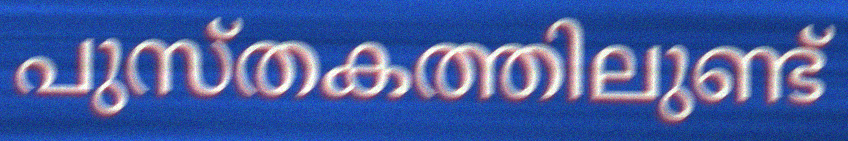
പുസ്തകത്തിലുണ്ട്